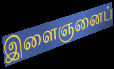
இளைஞனைப்